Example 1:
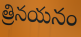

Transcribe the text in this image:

త్రినయనం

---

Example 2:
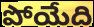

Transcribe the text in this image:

పోయేది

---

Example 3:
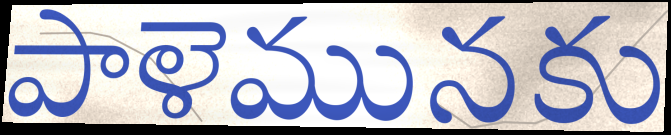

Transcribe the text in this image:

పాళెమునకు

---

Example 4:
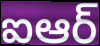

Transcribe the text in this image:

ఐఆర్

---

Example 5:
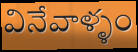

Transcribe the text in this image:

వినేవాళ్ళం